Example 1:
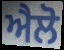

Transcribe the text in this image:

ਐਲੋ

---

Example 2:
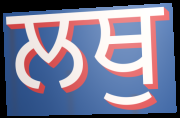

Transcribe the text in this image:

ਲਥੁ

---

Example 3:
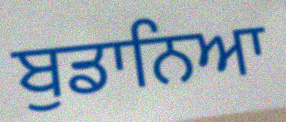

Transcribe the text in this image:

ਬੁਡਾਨਿਆ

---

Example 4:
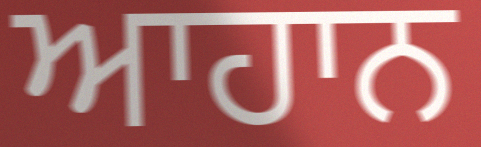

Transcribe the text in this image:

ਆਹਾਨ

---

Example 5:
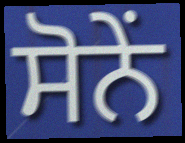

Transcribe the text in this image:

ਸੋਨੇਂ